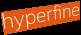
hyperfine